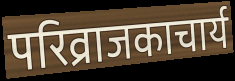
परिव्राजकाचार्य